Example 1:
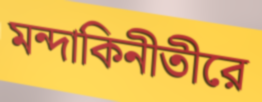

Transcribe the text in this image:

মন্দাকিনীতীরে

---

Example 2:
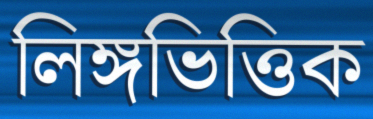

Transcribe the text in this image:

লিঙ্গভিত্তিক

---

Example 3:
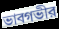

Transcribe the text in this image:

ভাবগভীর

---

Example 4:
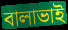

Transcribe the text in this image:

বালাভাই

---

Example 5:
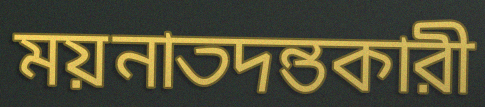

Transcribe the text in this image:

ময়নাতদন্তকারী